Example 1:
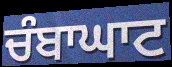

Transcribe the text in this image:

ਚੰਬਾਘਾਟ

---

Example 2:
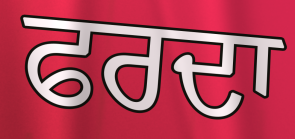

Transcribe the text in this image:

ਫਰਦਾ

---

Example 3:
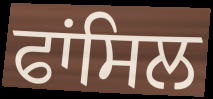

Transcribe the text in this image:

ਫਾਂਸਿਲ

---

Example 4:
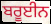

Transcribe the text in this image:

ਬਰੂਈਨ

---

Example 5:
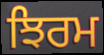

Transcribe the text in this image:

ਝਿਰਮ